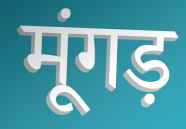
मूंगड़